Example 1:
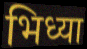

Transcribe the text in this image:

भिध्या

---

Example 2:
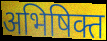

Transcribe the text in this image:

अभिषिक्त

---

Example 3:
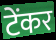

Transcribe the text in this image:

टेंकर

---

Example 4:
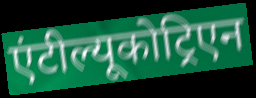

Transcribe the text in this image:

एंटील्यूकोट्रिएन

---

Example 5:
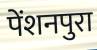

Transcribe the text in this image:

पेंशनपुरा